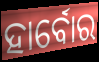
ହାର୍ବୋର